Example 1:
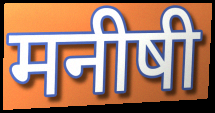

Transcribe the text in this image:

मनीषी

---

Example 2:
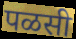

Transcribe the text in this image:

पळसी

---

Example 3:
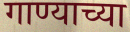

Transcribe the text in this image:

गाण्याच्या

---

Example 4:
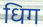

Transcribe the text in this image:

धिग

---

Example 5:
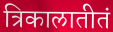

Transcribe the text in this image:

त्रिकालातीतं